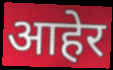
आहेर